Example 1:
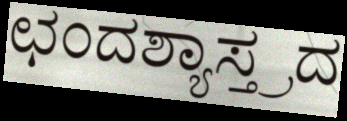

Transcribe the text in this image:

ಛಂದಶ್ಯಾಸ್ತ್ರದ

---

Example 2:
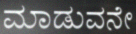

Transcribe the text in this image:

ಮಾಡುವನೇ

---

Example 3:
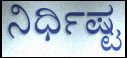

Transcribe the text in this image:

ನಿರ್ಧಿಷ್ಟ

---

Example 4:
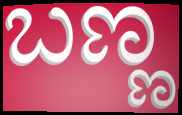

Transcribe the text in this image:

ಬಣ್ಣ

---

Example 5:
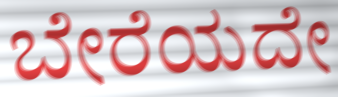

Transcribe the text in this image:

ಬೇರೆಯದೇ